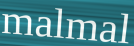
malmal